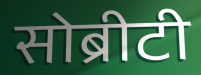
सोब्रीटी